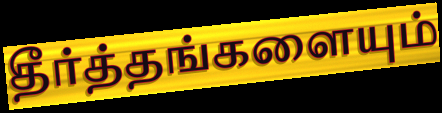
தீர்த்தங்களையும்